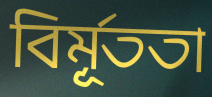
বির্মূততা